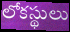
లోకస్థులు